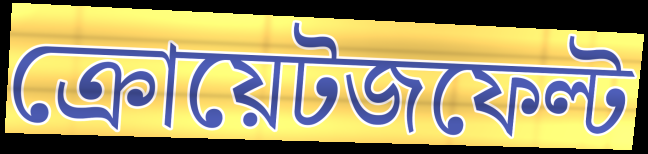
ক্রোয়েটজফেল্ট